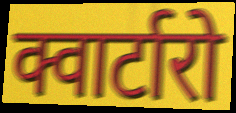
क्वार्टारो